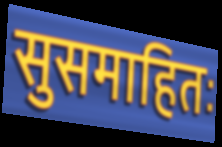
सुसमाहितः